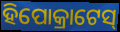
ହିପୋକ୍ରାଟେସ୍